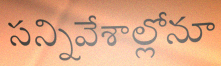
సన్నివేశాల్లోనూ